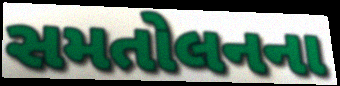
સમતોલનના